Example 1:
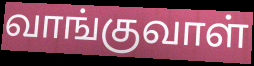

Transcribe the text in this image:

வாங்குவாள்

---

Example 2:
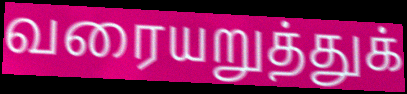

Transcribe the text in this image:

வரையறுத்துக்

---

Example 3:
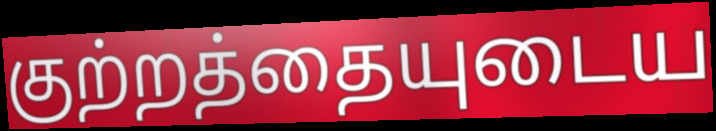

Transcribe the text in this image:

குற்றத்தையுடைய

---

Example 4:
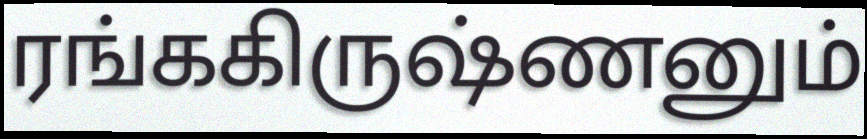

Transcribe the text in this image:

ரங்ககிருஷ்ணனும்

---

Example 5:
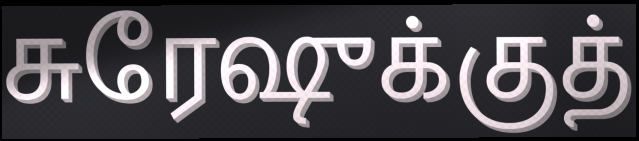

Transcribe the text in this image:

சுரேஷுக்குத்